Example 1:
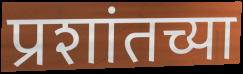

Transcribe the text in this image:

प्रशांतच्या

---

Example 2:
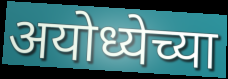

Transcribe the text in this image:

अयोध्येच्या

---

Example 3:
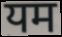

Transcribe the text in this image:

यम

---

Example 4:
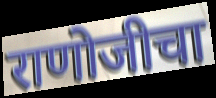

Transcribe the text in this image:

राणोजीचा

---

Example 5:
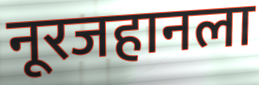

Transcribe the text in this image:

नूरजहानला